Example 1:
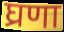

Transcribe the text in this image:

घ्रणा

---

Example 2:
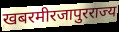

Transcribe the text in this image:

खबरमीरजापुरराज्य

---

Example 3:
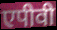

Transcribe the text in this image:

एपीवी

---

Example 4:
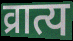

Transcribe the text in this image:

व्रात्य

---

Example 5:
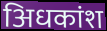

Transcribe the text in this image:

अिधकांश